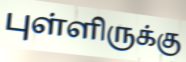
புள்ளிருக்கு